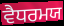
ਵੈਧਰਮਯ